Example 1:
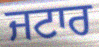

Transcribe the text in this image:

ਜਟਾਰ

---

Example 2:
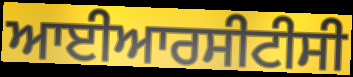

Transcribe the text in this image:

ਆਈਆਰਸੀਟੀਸੀ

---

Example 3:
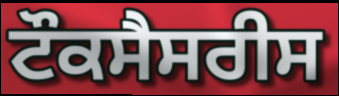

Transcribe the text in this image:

ਟੌਕਸੈਸਰੀਸ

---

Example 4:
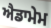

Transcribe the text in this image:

ਐਡਾਮੇਮ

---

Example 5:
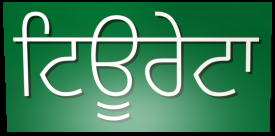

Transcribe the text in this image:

ਟਿਊਰੇਟਾ